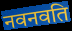
नवनवति